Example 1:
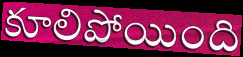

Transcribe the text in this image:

కూలిపోయింది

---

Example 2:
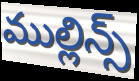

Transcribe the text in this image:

ముల్లిన్స్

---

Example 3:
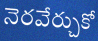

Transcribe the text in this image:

నెరవేర్చుకో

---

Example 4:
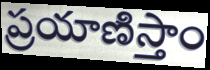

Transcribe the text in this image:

ప్రయాణిస్తాం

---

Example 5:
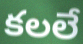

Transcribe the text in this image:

కలలే